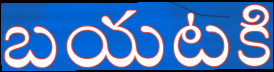
బయటకి